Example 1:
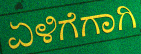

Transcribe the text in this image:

ಏಳಿಗೆಗಾಗಿ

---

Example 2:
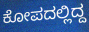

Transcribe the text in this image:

ಕೋಪದಲ್ಲಿದ್ದ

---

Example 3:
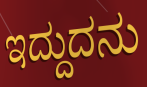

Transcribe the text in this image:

ಇದ್ದುದನು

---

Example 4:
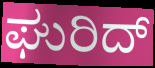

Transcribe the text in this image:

ಘುರಿದ್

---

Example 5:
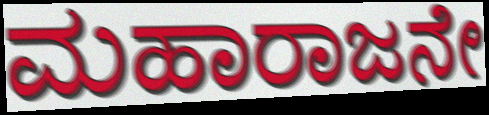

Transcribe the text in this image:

ಮಹಾರಾಜನೇ